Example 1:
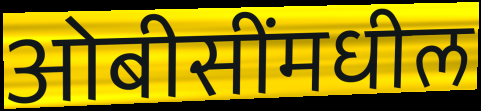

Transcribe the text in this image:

ओबीसींमधील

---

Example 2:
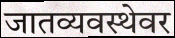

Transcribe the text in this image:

जातव्यवस्थेवर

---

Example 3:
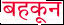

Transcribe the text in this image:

बहकून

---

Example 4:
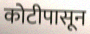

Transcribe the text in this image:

कोटीपासून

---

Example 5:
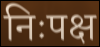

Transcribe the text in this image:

निःपक्ष